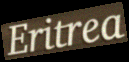
Eritrea